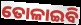
ତୋଳାଇବି